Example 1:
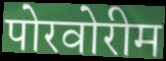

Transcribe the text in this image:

पोरवोरीम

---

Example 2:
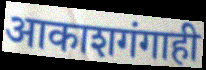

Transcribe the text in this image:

आकाशगंगाही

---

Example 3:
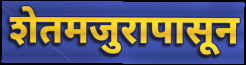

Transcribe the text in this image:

शेतमजुरापासून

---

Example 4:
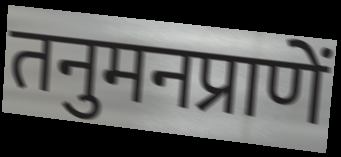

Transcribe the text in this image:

तनुमनप्राणें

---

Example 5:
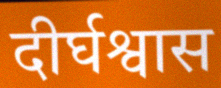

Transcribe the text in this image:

दीर्घश्वास